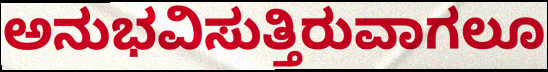
ಅನುಭವಿಸುತ್ತಿರುವಾಗಲೂ